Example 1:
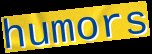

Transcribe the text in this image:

humors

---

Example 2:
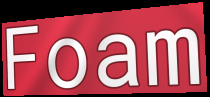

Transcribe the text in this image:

Foam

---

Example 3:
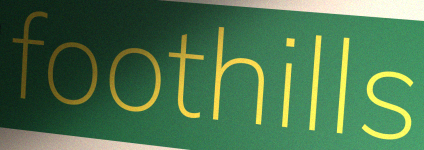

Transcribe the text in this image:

foothills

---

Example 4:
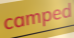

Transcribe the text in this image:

camped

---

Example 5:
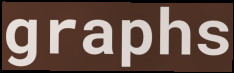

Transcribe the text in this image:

graphs